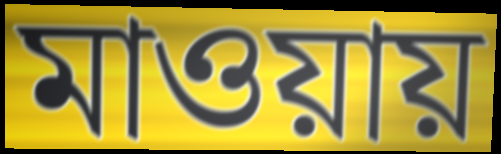
মাওয়ায়